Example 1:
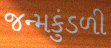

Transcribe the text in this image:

જન્મકુંડળી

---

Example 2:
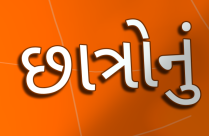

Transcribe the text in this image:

છાત્રોનું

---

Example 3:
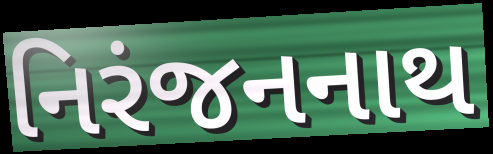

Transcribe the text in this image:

નિરંજનનાથ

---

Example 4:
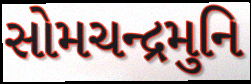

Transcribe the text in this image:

સોમચન્દ્રમુનિ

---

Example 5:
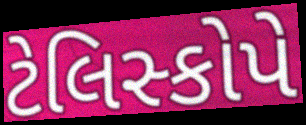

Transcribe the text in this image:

ટેલિસ્કોપે